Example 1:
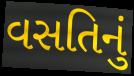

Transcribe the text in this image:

વસતિનું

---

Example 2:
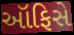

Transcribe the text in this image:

ઑફિસે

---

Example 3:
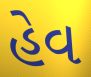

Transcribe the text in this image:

હેવ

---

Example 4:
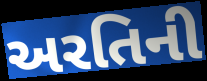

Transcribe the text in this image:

અરતિની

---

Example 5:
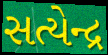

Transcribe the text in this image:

સત્યેન્દ્ર